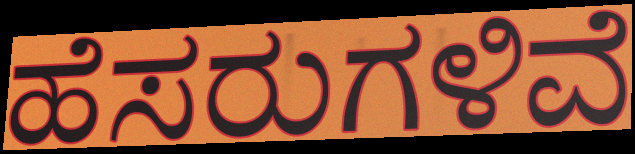
ಹೆಸರುಗಳಿವೆ